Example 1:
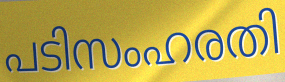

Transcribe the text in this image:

പടിസംഹരതി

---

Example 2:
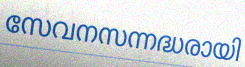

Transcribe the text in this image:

സേവനസന്നദ്ധരായി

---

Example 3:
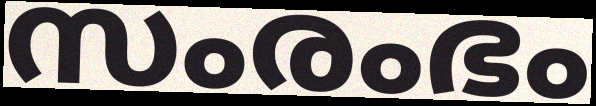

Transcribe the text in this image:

സംരംഭം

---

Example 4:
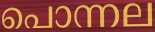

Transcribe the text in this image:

പൊന്നല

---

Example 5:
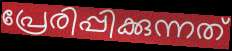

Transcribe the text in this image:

പ്രേരിപ്പിക്കുന്നത്